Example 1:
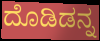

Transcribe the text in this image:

ದೊಡಿಡನ್ನ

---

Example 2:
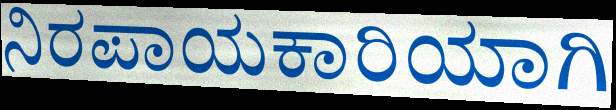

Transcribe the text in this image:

ನಿರಪಾಯಕಾರಿಯಾಗಿ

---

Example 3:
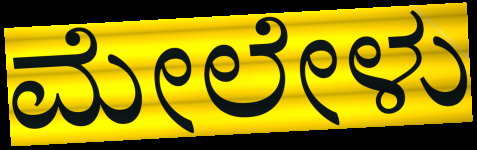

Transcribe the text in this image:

ಮೇಲೇಳು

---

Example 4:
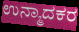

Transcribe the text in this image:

ಉನ್ಮಾದಕರ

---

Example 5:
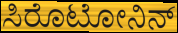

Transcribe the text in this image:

ಸಿರೊಟೋನಿನ್